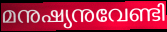
മനുഷ്യനുവേണ്ടി